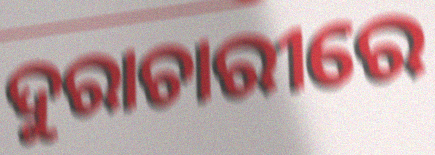
ଦୁରାଚାରୀରେ